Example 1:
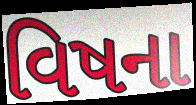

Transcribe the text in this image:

વિષના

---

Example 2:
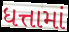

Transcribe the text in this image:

ધત્તામાં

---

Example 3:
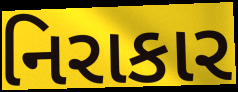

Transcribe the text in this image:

નિરાકાર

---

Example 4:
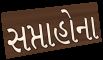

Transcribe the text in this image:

સપ્તાહોના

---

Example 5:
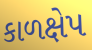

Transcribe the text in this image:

કાળક્ષેપ